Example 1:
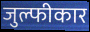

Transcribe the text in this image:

जुल्फीकार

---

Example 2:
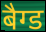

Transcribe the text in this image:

बैग्ड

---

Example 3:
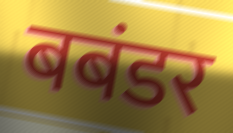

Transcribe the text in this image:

बबंडर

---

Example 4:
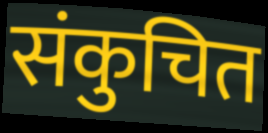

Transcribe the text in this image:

संकुचित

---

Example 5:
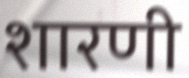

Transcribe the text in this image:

शारणी